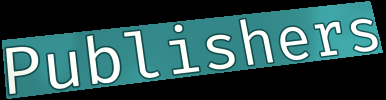
Publishers